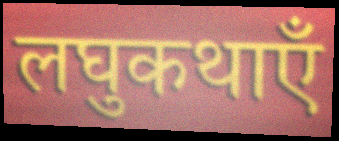
लघुकथाएँ